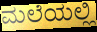
ಮಲೆಯಲ್ಲಿ